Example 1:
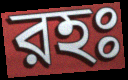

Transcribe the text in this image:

রহঃ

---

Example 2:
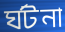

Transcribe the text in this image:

র্ঘটনা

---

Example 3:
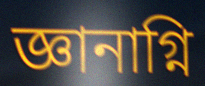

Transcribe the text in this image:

জ্ঞানাগ্নি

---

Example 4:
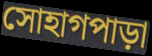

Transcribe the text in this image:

সোহাগপাড়া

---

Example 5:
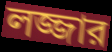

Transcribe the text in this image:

লজ্জার